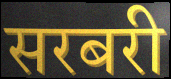
सरबरी